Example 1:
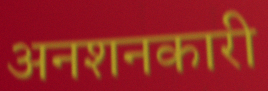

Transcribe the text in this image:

अनशनकारी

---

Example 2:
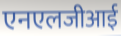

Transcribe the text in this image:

एनएलजीआई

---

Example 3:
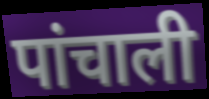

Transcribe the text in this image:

पांचाली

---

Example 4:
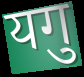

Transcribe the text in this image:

यगु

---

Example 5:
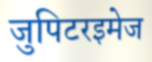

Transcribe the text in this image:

जुपिटरइमेज